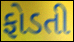
ફોડતી